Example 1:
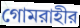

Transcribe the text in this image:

গোমরাহীর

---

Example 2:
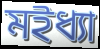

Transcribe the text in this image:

মইধ্যা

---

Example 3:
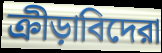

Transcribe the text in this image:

ক্রীড়াবিদেরা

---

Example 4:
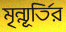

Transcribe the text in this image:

মৃন্মূর্তির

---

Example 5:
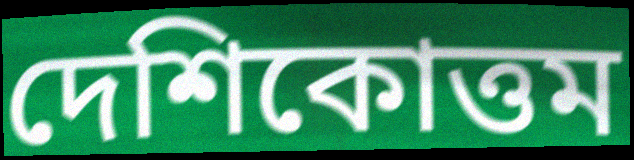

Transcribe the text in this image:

দেশিকোত্তম